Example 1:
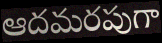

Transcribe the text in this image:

ఆదమరపుగా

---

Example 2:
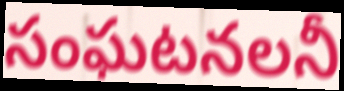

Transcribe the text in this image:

సంఘటనలనీ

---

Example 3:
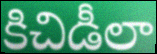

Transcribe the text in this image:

కిచిడీలా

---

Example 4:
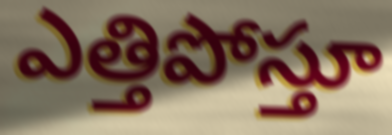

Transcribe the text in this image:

ఎత్తిపోస్తూ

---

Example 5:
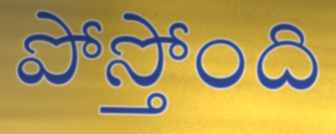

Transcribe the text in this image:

పోస్తోంది